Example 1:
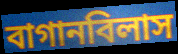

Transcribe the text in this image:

বাগানবিলাস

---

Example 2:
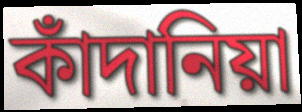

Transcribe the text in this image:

কাঁদানিয়া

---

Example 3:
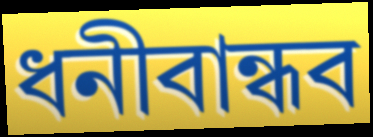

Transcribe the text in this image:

ধনীবান্ধব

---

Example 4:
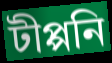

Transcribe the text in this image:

টীপ্পনি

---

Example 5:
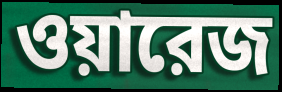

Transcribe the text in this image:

ওয়ারেজ